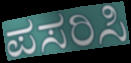
ಪಸರಿಸಿ